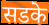
सडके